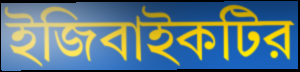
ইজিবাইকটির